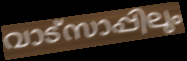
വാട്സാപ്പിലും